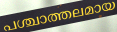
പശ്ചാത്തലമായ